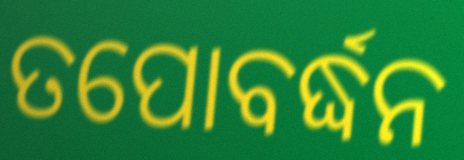
ତପୋବର୍ଦ୍ଧନ